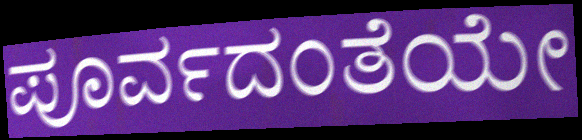
ಪೂರ್ವದಂತೆಯೇ